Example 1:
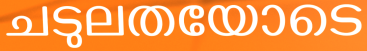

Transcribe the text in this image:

ചടുലതയോടെ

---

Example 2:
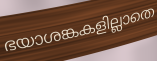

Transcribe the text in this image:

ഭയാശങ്കകളില്ലാതെ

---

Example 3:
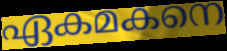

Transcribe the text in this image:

ഏകമകനെ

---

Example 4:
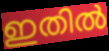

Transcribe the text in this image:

ഇതിൽ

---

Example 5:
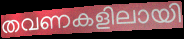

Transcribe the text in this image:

തവണകളിലായി